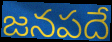
జనపదే